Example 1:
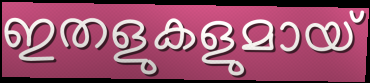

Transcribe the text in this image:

ഇതളുകളുമായ്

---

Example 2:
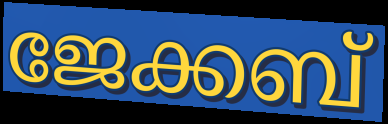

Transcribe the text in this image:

ജേക്കബ്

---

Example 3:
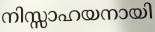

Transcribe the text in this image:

നിസ്സാഹയനായി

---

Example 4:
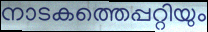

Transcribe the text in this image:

നാടകത്തെപ്പറ്റിയും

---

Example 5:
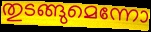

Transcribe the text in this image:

തുടങ്ങുമെന്നോ